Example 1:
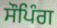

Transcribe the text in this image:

ਸੌਪਿੰਗ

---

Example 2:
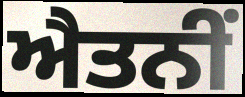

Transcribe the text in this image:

ਐਤਨੀਂ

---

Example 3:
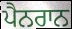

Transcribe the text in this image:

ਪੈਨਰਾਨ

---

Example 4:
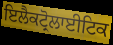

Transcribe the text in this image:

ਇਲੈਕਟ੍ਰੋਲਾਈਟਿਕ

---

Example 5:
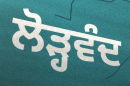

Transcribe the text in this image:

ਲੋੜ੍ਹਵੰਦ